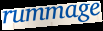
rummage